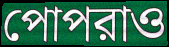
পোপরাও